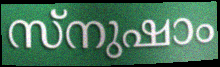
സ്നുഷാം